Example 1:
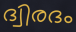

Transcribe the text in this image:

ദ്വിരദം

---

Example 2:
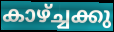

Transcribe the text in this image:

കാഴ്ച്ചക്കു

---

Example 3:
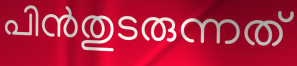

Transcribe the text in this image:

പിൻതുടരുന്നത്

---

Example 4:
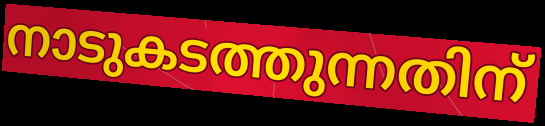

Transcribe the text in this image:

നാടുകടത്തുന്നതിന്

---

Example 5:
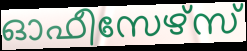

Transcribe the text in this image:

ഓഫീസേഴ്സ്